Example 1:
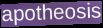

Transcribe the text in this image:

apotheosis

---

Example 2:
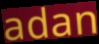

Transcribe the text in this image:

adan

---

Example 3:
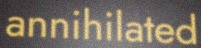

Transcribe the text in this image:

annihilated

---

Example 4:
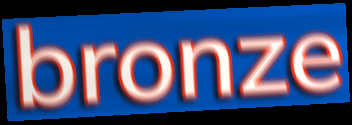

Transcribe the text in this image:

bronze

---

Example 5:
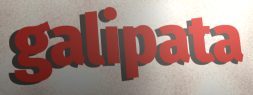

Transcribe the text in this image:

galipata